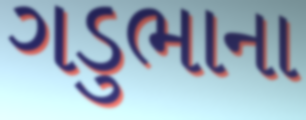
ગડુભાના